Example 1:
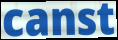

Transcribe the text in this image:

canst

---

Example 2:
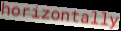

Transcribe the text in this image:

horizontally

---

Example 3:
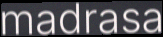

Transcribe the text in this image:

madrasa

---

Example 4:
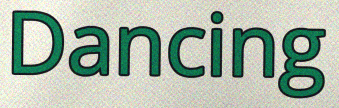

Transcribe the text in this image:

Dancing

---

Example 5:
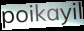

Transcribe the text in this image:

poikayil